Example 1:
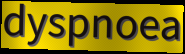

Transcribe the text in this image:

dyspnoea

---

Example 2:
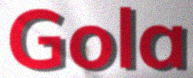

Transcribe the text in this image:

Gola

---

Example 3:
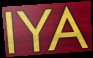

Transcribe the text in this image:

IYA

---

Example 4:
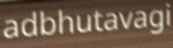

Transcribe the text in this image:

adbhutavagi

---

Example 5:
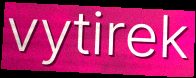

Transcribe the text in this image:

vytirek